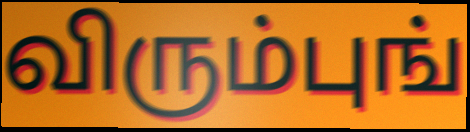
விரும்புங்